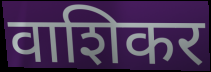
वाशिकर